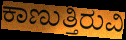
ಕಾಣುತ್ತಿರುವಿ